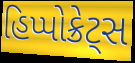
હિપ્પોક્રેટ્સ